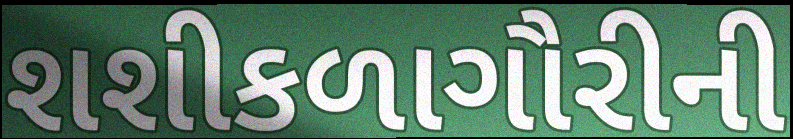
શશીકળાગૌરીની